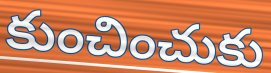
కుంచించుకు